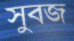
সুবজ